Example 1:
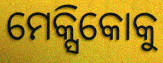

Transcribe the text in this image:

ମେକ୍ସିକୋକୁ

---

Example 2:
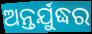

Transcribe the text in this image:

ଅନ୍ତର୍ଯୁଦ୍ଧର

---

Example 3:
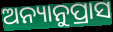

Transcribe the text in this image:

ଅନ୍ୟାନୁପ୍ରାସ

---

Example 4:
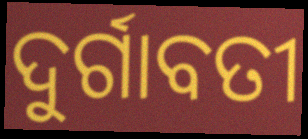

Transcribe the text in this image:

ଦୁର୍ଗାବତୀ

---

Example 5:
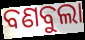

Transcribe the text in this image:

ବଣବୁଲା